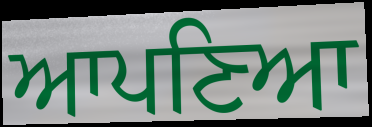
ਆਪਣਿਆ